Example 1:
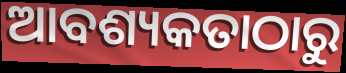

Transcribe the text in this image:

ଆବଶ୍ୟକତାଠାରୁ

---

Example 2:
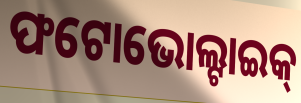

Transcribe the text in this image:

ଫଟୋଭୋଲ୍ଟାଇକ୍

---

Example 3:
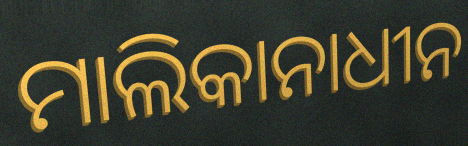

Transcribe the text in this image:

ମାଲିକାନାଧୀନ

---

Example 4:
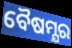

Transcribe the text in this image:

ବୈଷମ୍ଯର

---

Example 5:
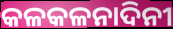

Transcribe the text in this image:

କଳକଳନାଦିନୀ